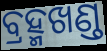
ବ୍ରହ୍ମଖଣ୍ଡ